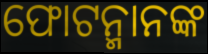
ଫୋଟନ୍ମାନଙ୍କ